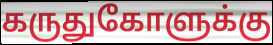
கருதுகோளுக்கு